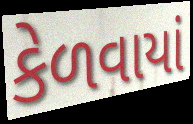
કેળવાયાં